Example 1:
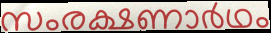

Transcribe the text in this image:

സംരക്ഷണാർഥം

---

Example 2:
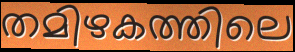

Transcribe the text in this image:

തമിഴകത്തിലെ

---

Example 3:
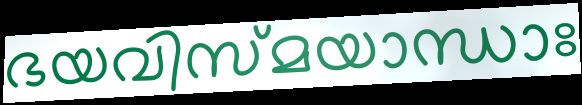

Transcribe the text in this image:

ഭയവിസ്മയാന്ധാഃ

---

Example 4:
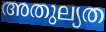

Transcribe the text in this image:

അതുല്യത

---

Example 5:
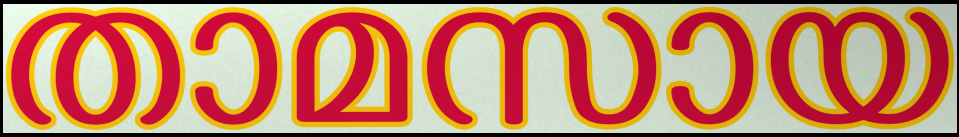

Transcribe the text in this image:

താമസായ